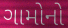
ગામોનો